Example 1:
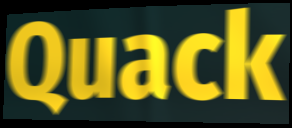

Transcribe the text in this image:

Quack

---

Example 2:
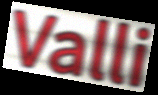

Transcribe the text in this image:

Valli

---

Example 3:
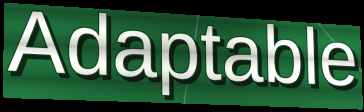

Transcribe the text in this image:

Adaptable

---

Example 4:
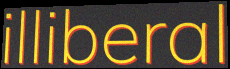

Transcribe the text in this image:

illiberal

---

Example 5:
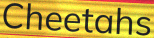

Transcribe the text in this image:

Cheetahs